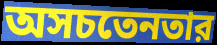
অসচতেনতার